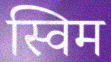
स्विम